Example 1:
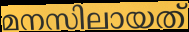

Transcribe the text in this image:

മനസിലായത്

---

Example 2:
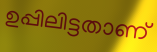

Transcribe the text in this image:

ഉപ്പിലിട്ടതാണ്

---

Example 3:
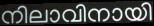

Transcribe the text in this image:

നിലാവിനായി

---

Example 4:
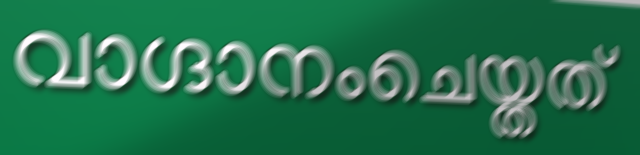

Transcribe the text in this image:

വാഗ്ദാനംചെയ്തത്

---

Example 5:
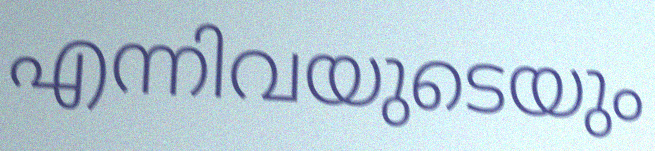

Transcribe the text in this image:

എന്നിവയുടെയും